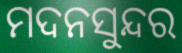
ମଦନସୁନ୍ଦର